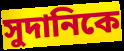
সুদানিকে